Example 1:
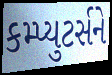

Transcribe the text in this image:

કમ્પ્યુટર્સને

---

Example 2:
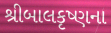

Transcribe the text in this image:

શ્રીબાલકૃષ્ણના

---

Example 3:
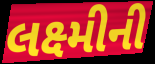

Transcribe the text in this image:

લક્ષ્મીની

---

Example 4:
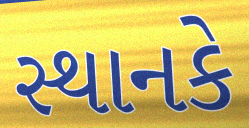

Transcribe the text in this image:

સ્થાનકે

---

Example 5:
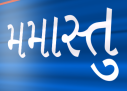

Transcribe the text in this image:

મમાસ્તુ